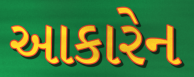
આકારેન